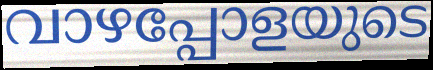
വാഴപ്പോളയുടെ